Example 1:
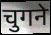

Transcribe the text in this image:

चुगने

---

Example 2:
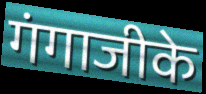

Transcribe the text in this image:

गंगाजीके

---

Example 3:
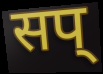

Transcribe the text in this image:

सप्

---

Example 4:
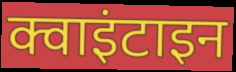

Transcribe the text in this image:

क्वाइंटाइन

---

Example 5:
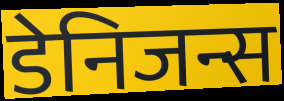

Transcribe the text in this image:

डेनिजन्स